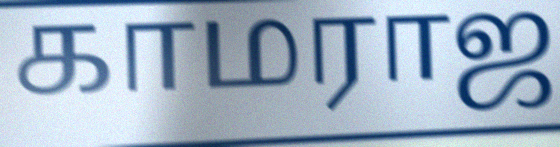
காமராஜ